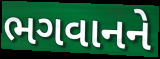
ભગવાનને